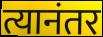
त्यानंतर